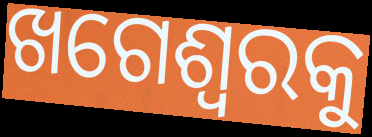
ଖଗେଶ୍ୱରକୁ